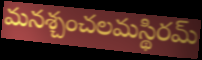
మనశ్చంచలమస్థిరమ్